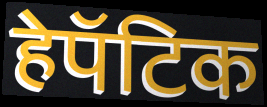
हेपॅटिक